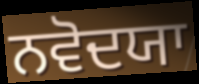
ਨਵੋਦਯਾ